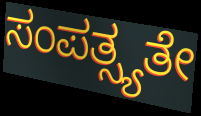
ಸಂಪತ್ಸ್ಯತೇ